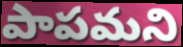
పాపమని